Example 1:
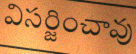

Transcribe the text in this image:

విసర్జించావు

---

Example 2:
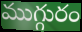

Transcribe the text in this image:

ముగ్గురం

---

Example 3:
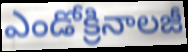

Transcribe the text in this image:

ఎండోక్రినాలజీ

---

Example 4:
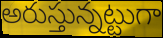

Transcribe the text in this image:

అరుస్తున్నట్టుగా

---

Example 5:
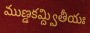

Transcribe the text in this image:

ముణ్డకమ్ద్వితీయః